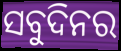
ସବୁଦିନର